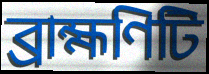
ব্রাহ্মণিটি